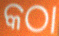
କଠା